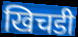
खिचडी